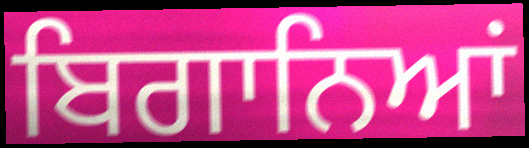
ਬਿਗਾਨਿਆਂ